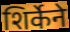
शिर्केने